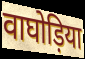
वाघोड़िया